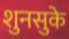
शुनसुके